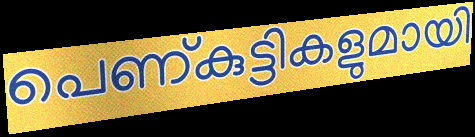
പെണ്കുട്ടികളുമായി